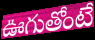
ఊగుతోంటే